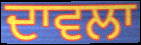
ਦਾਵਲਾ